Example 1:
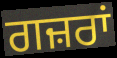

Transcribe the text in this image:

ਗਜ਼ਰਾਂ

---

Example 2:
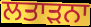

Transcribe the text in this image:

ਲਤਾੜਨਾ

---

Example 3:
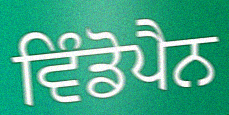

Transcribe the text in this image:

ਵਿੰਡੋਪੈਨ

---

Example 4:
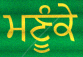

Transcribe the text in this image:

ਮਣੂੰਕੇ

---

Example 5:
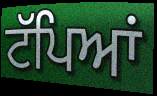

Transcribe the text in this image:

ਟੱਪਿਆਂ